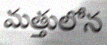
మత్తులోన